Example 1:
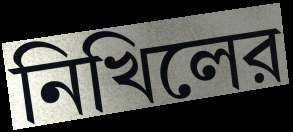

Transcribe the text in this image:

নিখিলের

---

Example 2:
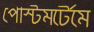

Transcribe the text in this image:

পোস্টমর্টেমে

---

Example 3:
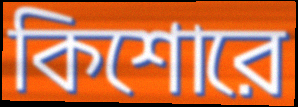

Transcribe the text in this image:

কিশোরে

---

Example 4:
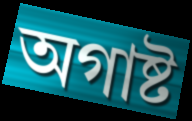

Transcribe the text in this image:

অগাষ্ট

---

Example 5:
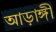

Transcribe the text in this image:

আড়াঙ্গী